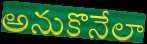
అనుకొనేలా